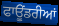
ਫਾਊਂਡਰੀਆਂ